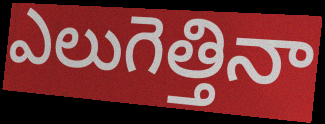
ఎలుగెత్తినా